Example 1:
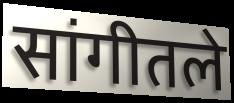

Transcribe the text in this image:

सांगीतले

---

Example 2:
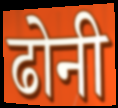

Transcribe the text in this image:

ढोनी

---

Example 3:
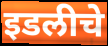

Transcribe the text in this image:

इडलीचे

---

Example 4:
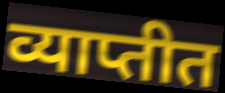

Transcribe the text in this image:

व्याप्तीत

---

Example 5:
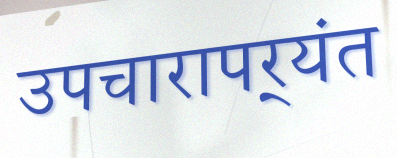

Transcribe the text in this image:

उपचारापर्यंत